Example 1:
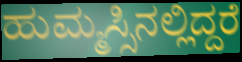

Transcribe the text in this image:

ಹುಮ್ಮಸ್ಸಿನಲ್ಲಿದ್ದರೆ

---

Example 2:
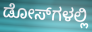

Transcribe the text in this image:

ಡೋಸ್‌ಗಳಲ್ಲಿ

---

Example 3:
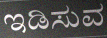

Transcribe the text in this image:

ಇಡಿಸುವ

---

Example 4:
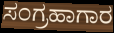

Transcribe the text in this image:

ಸಂಗ್ರಹಾಗಾರ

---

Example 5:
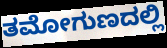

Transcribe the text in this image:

ತಮೋಗುಣದಲ್ಲಿ